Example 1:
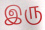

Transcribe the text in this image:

இரு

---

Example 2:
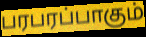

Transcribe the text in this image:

பரபரப்பாகும்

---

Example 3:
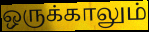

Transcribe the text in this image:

ஒருக்காலும்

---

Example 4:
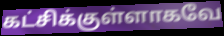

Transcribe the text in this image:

கட்சிக்குள்ளாகவே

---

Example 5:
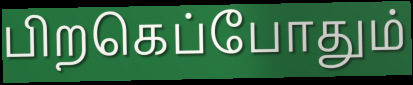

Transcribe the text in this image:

பிறகெப்போதும்